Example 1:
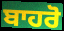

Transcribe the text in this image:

ਬਾਹਰੋ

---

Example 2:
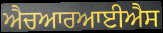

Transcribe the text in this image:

ਐਚਆਰਆਈਐਸ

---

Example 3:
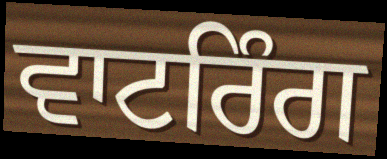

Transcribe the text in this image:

ਵਾਟਰਿੰਗ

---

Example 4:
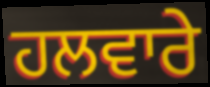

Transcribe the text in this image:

ਹਲਵਾਰੇ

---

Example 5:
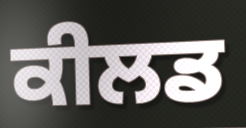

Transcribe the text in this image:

ਕੀਲਡ